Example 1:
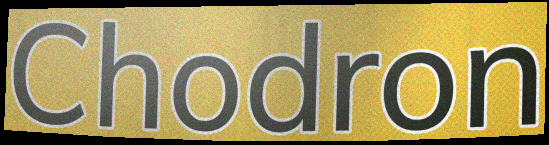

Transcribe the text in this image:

Chodron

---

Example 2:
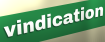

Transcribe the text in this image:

vindication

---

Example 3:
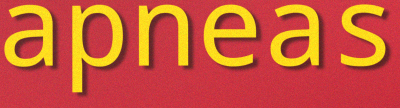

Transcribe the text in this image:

apneas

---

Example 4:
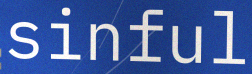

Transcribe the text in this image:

sinful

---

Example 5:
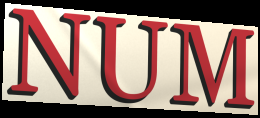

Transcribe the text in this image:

NUM